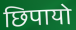
छिपायो